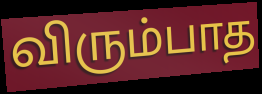
விரும்பாத